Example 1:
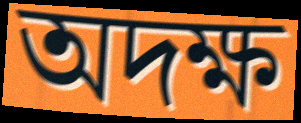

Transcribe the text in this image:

অদক্ষ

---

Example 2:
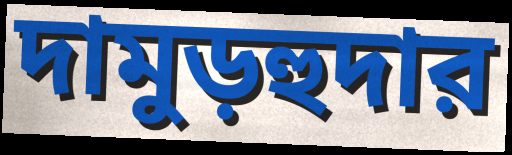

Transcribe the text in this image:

দামুড়হুদার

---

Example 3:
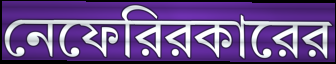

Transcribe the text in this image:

নেফেরিরকারের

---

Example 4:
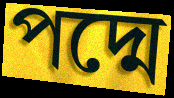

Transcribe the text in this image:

পদ্মে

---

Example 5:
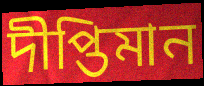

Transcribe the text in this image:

দীপ্তিমান